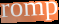
romp